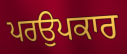
ਪਰਉਪਕਾਰ